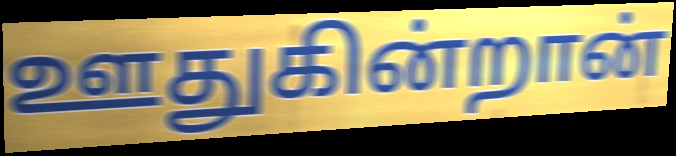
ஊதுகின்றான்